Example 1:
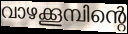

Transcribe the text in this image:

വാഴക്കൂമ്പിന്റെ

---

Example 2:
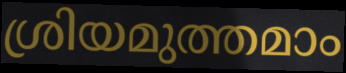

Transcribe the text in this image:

ശ്രിയമുത്തമാം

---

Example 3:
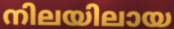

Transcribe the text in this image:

നിലയിലായ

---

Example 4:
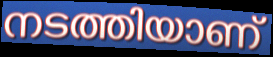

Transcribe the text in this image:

നടത്തിയാണ്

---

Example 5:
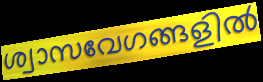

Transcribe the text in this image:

ശ്വാസവേഗങ്ങളിൽ